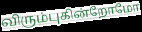
விரும்புகின்றோமோ